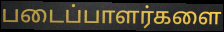
படைப்பாளர்களை